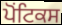
ਪੋਂਟਿਕਸ